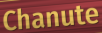
Chanute